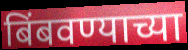
बिंबवण्याच्या